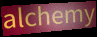
alchemy